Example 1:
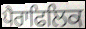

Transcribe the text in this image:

ਪੈਰਾਫਿਲਿਕ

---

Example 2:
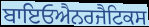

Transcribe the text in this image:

ਬਾਇਓਐਨਰਜੈਟਿਕਸ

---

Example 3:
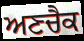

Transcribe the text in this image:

ਅਣਚੈਕ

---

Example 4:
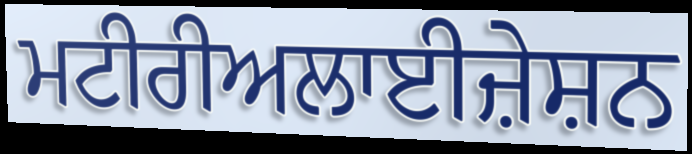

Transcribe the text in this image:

ਮਟੀਰੀਅਲਾਈਜ਼ੇਸ਼ਨ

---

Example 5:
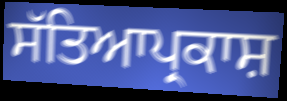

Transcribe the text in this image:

ਸੱਤਿਆਪ੍ਰਕਾਸ਼